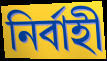
নির্বাহী